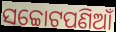
ସଚ୍ଚୋଟପଣିଆଁ